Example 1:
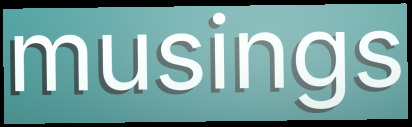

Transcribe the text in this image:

musings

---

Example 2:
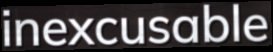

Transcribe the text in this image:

inexcusable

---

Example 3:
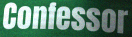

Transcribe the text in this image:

Confessor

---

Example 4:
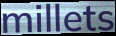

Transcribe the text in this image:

millets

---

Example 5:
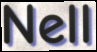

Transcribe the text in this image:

Nell